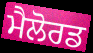
ਮੈਲੋਰਡ